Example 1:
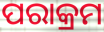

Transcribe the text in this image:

ପରାକ୍ରମ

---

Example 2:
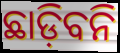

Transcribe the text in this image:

ଛାଡ଼ିବନି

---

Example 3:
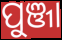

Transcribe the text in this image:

ପୁଞ୍ଜା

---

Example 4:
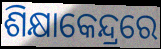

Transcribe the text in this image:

ଶିକ୍ଷାକେନ୍ଦ୍ରରେ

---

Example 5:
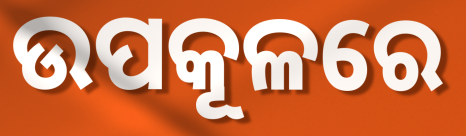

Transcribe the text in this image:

ଉପକୂଳରେ